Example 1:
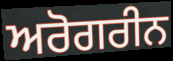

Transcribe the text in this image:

ਅਰੋਗਰੀਨ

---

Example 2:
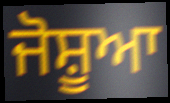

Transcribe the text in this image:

ਜੋਸ਼ੂਆ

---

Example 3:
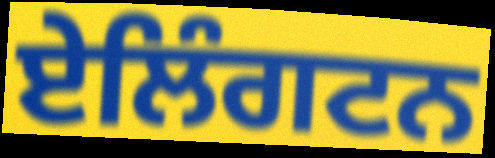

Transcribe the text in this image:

ਏਲਿੰਗਟਨ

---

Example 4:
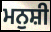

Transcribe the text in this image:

ਮਨੁਸ਼ੀ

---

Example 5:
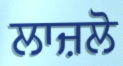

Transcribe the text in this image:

ਲਾਜ਼ਲੋ